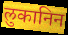
लुकानिन